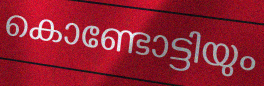
കൊണ്ടോട്ടിയും